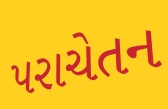
પરાચેતન